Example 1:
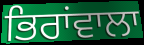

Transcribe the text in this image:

ਭਿਰਾਂਵਾਲਾ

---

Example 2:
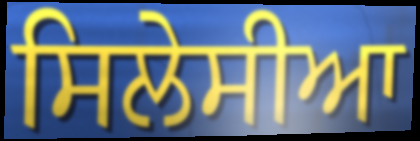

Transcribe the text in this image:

ਸਿਲੇਸੀਆ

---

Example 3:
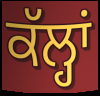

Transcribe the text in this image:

ਕੱਲ੍ਹਾਂ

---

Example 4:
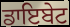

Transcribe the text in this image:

ਡਾਇਬੇਟ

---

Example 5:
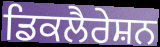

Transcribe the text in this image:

ਡਿਕਲੈਰੇਸ਼ਨ